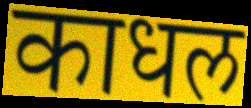
काधल